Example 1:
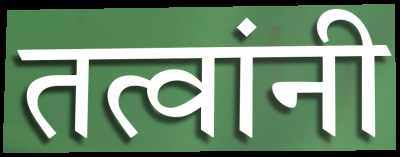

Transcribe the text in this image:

तत्वांनी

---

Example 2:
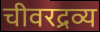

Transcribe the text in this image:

चीवरद्रव्य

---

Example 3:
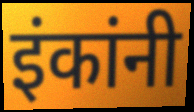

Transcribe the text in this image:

इंकांनी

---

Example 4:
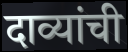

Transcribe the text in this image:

दाव्यांची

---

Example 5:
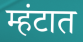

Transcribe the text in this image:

म्हंटात